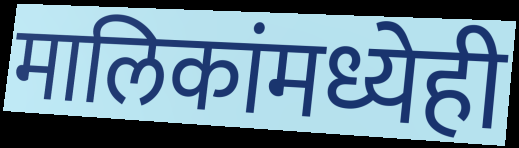
मालिकांमध्येही